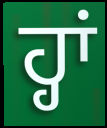
ਹ੍ਹਾਂ